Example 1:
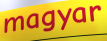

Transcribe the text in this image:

magyar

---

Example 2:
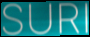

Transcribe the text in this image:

SURI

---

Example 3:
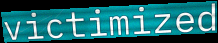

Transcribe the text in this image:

victimized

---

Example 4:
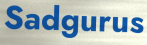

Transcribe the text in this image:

Sadgurus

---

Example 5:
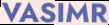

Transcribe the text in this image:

VASIMR